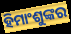
ହିମାଂଶୁଙ୍କର